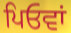
ਪਿਓਵਾਂ